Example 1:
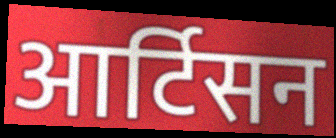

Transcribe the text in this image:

आर्टिसन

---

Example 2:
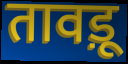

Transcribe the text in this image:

तावड़ू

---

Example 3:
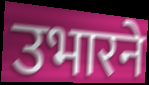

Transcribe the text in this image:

उभारने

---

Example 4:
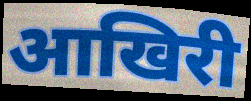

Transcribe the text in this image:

आखिरी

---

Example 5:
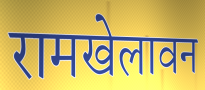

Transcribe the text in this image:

रामखेलावन